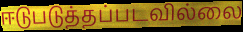
ஈடுபடுத்தப்படவில்லை